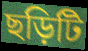
ছড়িটি